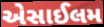
એસાઈલમ